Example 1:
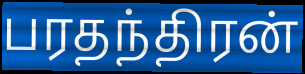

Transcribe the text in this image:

பரதந்திரன்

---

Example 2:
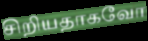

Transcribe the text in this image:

சிறியதாகவோ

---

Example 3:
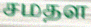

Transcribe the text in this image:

சமதள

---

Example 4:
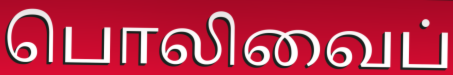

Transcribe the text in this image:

பொலிவைப்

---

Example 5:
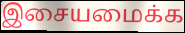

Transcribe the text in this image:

இசையமைக்க